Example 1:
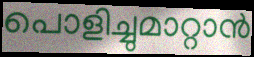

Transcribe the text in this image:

പൊളിച്ചുമാറ്റാൻ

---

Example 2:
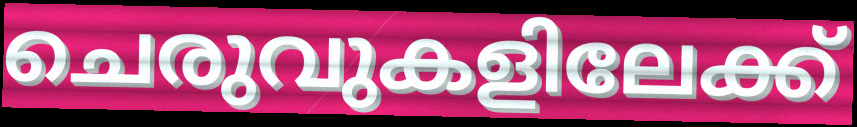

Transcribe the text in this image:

ചെരുവുകളിലേക്ക്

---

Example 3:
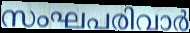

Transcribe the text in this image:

സംഘപരിവാർ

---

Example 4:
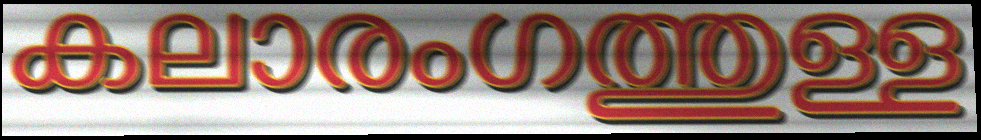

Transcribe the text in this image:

കലാരംഗത്തുള്ള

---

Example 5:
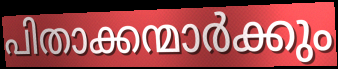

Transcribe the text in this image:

പിതാക്കന്മാർക്കും